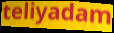
teliyadam